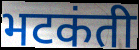
भटकंती